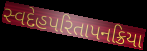
સ્વદેહપરિતાપનક્રિયા